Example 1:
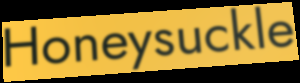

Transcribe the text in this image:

Honeysuckle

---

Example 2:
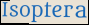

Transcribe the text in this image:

Isoptera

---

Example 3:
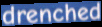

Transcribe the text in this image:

drenched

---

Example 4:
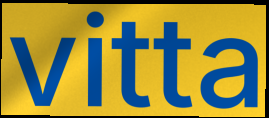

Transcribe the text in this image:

vitta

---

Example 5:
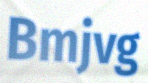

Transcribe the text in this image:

Bmjvg